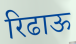
रिढाऊ